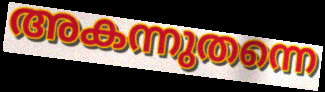
അകന്നുതന്നെ